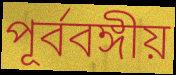
পূর্ববঙ্গীয়